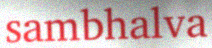
sambhalva